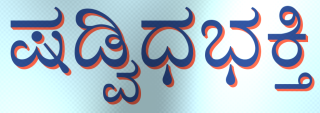
ಷಡ್ವಿಧಭಕ್ತಿ